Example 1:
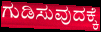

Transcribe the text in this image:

ಗುಡಿಸುವುದಕ್ಕೆ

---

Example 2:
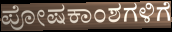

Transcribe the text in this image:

ಪೋಷಕಾಂಶಗಳಿಗೆ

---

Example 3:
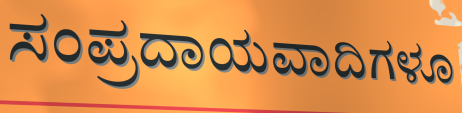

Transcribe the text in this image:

ಸಂಪ್ರದಾಯವಾದಿಗಳೂ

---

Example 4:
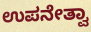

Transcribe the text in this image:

ಉಪನೇತ್ವಾ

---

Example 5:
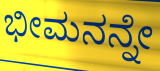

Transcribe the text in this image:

ಭೀಮನನ್ನೇ